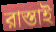
রাস্তাই